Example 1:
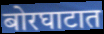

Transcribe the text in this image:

बोरघाटात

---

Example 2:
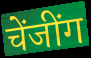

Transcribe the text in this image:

चेंजींग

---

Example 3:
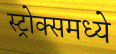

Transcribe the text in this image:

स्ट्रोक्समध्ये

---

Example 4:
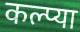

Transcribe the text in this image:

कल्प्या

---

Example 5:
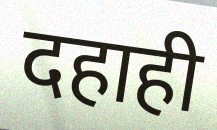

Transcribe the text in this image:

दहाही